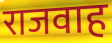
राजवाह